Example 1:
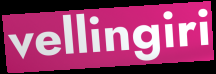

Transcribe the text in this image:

vellingiri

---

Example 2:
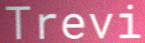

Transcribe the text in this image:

Trevi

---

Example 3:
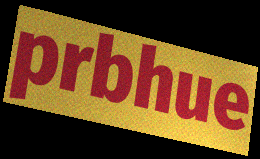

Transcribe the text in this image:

prbhue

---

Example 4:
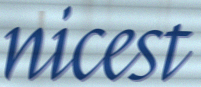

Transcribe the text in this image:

nicest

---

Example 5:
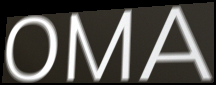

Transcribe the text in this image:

OMA